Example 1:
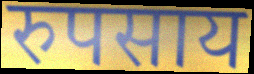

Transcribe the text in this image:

रुपसाय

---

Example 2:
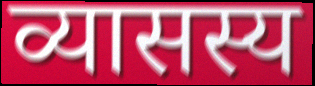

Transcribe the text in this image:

व्यासस्य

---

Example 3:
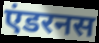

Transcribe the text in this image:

एंडरनस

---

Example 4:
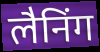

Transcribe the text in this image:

लैनिंग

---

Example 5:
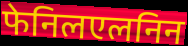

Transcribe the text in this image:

फेनिलएलनिन